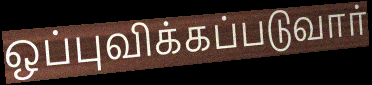
ஒப்புவிக்கப்படுவார்